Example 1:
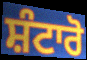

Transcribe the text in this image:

ਸ਼ੰਟਾਰੋ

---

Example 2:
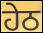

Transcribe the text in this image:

ਹੇਠ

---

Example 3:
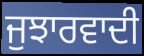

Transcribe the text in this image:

ਜੁਝਾਰਵਾਦੀ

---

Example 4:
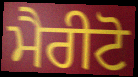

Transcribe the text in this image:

ਮੈਰੀਟੋ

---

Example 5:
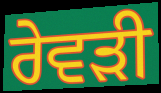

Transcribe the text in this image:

ਰੇਵੜੀ